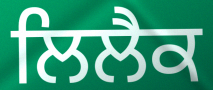
ਲਿਲੈਕ